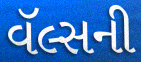
વૅલ્સની